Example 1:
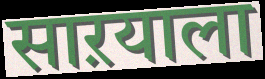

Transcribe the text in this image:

साऱयाला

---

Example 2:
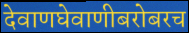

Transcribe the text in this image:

देवाणघेवाणीबरोबरच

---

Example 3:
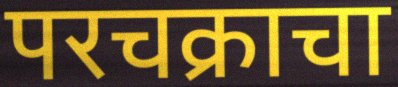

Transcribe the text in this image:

परचक्राचा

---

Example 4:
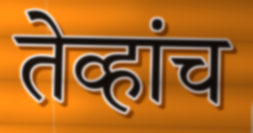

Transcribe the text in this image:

तेव्हांच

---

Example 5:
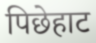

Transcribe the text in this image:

पिछेहाट